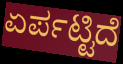
ಏರ್ಪಟ್ಟಿದೆ